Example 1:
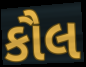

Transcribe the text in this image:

કૌલ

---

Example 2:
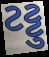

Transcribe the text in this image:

ટટ્ટુ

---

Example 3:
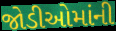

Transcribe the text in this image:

જોડીઓમાંની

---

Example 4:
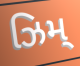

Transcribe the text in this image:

ઝિમ્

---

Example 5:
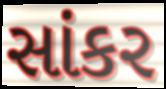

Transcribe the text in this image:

સાંકર